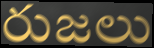
రుజలు